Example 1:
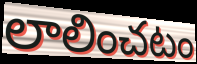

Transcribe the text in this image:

లాలించటం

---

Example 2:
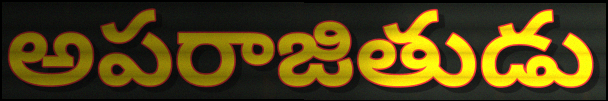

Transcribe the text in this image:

అపరాజితుడు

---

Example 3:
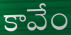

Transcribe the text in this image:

కావేం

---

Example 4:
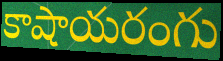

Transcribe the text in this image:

కాషాయరంగు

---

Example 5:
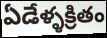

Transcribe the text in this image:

ఏడేళ్ళక్రితం